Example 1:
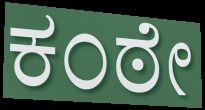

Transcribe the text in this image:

ಕಂಠೇ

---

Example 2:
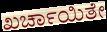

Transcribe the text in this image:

ಖರ್ಚಾಯಿತೇ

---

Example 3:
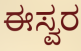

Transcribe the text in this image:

ಈಸ್ವರ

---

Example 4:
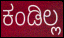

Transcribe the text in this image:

ಕಂಡಿಲ್ಲ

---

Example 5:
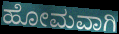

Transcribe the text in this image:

ಹೋಮವಾಗಿ